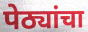
पेठ्यांचा